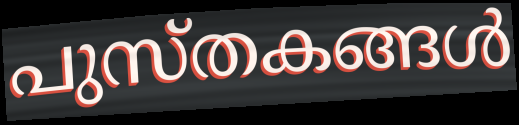
പുസ്തകങ്ങൾ